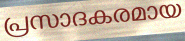
പ്രസാദകരമായ